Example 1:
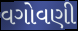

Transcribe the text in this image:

વગોવણી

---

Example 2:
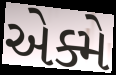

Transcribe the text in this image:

એક્મે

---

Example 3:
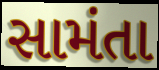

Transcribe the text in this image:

સામંતા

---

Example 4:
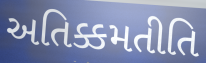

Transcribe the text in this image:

અતિક્કમતીતિ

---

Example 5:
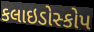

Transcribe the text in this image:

કલાઇડોસ્કોપ